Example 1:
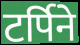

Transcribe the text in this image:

टर्पिने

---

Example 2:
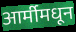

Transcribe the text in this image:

आर्मीमधून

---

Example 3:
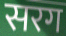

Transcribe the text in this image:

सरग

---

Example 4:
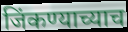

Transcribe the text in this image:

जिंकण्याच्याच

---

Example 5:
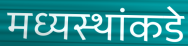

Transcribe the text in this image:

मध्यस्थांकडे